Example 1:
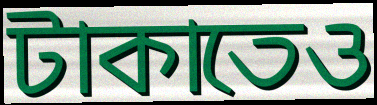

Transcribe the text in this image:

টাকাতেও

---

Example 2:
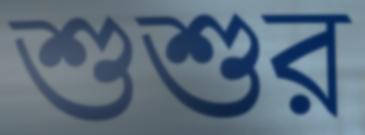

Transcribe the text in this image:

শুশুর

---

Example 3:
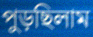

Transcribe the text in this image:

পুড়ছিলাম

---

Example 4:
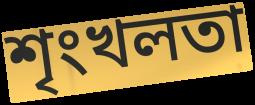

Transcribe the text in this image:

শৃংখলতা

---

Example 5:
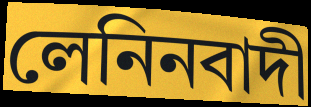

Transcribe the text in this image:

লেনিনবাদী